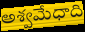
అశ్వమేధాది